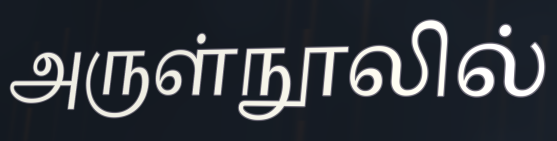
அருள்நூலில்